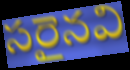
సరైనవి